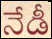
నేడీ